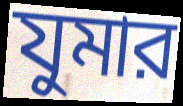
যুমার